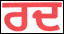
ਰਦ